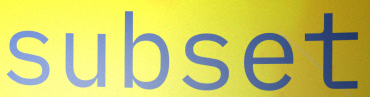
subset